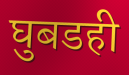
घुबडही